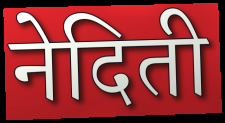
नेदिती